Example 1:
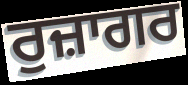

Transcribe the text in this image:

ਰੁਜ਼ਾਗਰ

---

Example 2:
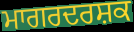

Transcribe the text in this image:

ਮਾਗਰਦਰਸ਼ਕ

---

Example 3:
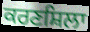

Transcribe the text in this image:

ਕਰਣਸ਼ਿਲਾ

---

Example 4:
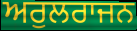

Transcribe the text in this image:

ਅਰੁਲਰਾਜਨ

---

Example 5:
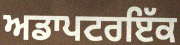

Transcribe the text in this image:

ਅਡਾਪਟਰਇੱਕ